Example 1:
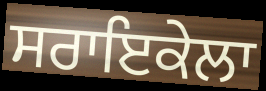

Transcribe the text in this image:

ਸਰਾਇਕੇਲਾ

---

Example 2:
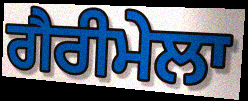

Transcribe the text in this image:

ਗੈਰੀਮੇਲਾ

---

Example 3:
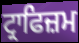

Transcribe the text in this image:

ਟ੍ਰਾਫਿਜ਼ਮ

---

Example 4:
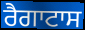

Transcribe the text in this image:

ਰੈਗਾਟਾਸ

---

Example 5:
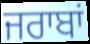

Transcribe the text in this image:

ਜਰਾਬਾਂ